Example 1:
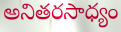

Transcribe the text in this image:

అనితరసాధ్యం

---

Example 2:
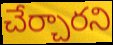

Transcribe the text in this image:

చేర్చారని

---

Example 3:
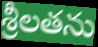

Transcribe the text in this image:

శ్రీలతను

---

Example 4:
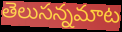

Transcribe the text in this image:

తెలుసన్నమాట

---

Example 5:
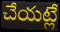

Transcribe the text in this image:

చేయట్లే